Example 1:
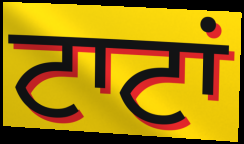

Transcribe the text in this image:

ਟਾਟਾਂ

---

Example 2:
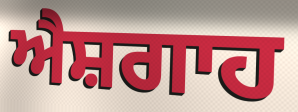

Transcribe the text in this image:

ਐਸ਼ਗਾਹ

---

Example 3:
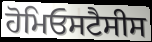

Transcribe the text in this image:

ਹੋਮਿਓਸਟੈਸੀਸ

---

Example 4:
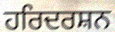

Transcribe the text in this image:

ਹਰਿਦਰਸ਼ਨ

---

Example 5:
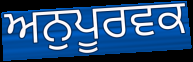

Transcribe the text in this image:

ਅਨੁਪੂਰਵਕ